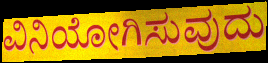
ವಿನಿಯೋಗಿಸುವುದು